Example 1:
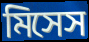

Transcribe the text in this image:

মিসেস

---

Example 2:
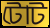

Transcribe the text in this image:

টোট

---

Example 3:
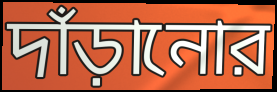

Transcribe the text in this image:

দাঁড়ানোর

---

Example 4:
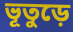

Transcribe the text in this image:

ভূতুড়ে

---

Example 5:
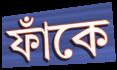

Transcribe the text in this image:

ফাঁকে